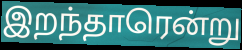
இறந்தாரென்று